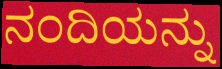
ನಂದಿಯನ್ನು